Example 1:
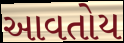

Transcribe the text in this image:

આવતોય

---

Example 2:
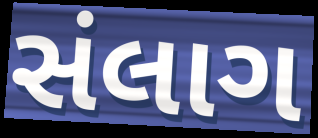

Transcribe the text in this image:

સંલાગ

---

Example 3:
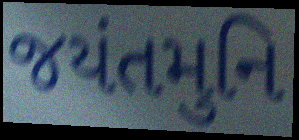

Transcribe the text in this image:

જયંતમુનિ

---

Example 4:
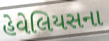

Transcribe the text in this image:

હેવેલિયસના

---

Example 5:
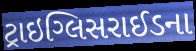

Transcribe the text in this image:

ટ્રાઇગ્લિસરાઈડના